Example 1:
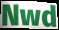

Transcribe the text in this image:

Nwd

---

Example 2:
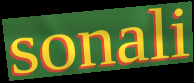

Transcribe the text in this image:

sonali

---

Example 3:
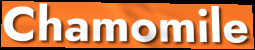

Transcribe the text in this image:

Chamomile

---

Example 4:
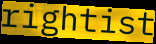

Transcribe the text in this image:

rightist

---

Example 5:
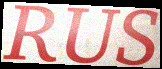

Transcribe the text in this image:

RUS